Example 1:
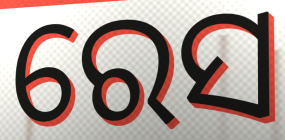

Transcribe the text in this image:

ରେସ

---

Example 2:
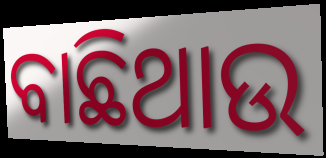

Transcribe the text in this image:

ବାଛିଥାଉ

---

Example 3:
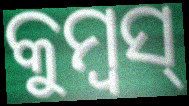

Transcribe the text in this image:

କୁମ୍ବସ୍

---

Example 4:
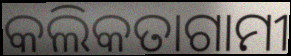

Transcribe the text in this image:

କଲିକତାଗାମୀ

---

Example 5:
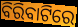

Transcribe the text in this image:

ବିରିବାଟିରେ